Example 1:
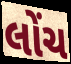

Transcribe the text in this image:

લોંચ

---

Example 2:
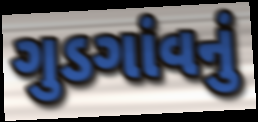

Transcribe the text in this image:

ગુડગાંવનું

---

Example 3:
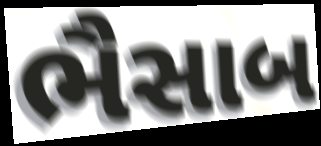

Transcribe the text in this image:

ભૈસાબ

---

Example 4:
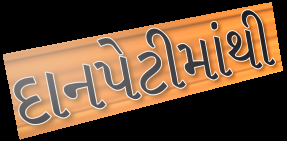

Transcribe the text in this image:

દાનપેટીમાંથી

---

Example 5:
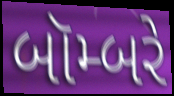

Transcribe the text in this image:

બૉમ્બરે